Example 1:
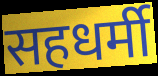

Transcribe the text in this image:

सहधर्मी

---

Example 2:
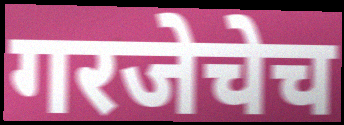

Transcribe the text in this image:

गरजेचेच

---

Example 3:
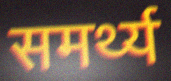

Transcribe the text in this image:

समर्थ्य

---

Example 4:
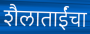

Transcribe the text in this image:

शैलाताईंचा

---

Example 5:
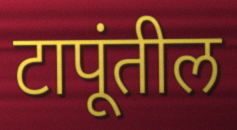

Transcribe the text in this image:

टापूंतील